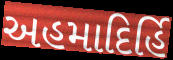
અહમાદિર્હિ